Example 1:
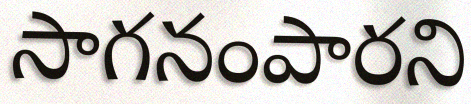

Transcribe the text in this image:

సాగనంపారని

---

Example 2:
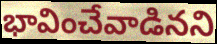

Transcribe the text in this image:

భావించేవాడినని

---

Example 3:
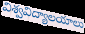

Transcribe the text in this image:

విశ్వవిద్యాలయాలు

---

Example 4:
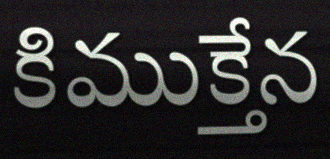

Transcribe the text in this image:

కిముక్తేన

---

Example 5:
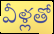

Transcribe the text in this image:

వీళ్లతో